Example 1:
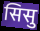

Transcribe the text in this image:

सिसु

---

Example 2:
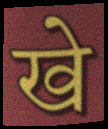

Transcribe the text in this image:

खे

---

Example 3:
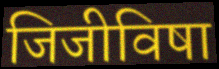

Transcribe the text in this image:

जिजीविषा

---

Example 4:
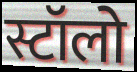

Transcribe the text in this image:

स्टॉलो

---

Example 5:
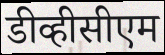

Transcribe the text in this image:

डीव्हीसीएम